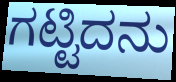
ಗಟ್ಟಿದನು